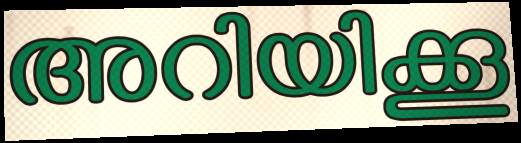
അറിയിക്കൂ